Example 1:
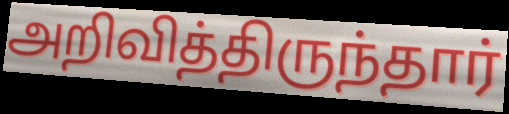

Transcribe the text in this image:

அறிவித்திருந்தார்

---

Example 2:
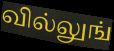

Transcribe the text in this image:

வில்லுங்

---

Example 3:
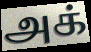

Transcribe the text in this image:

அக்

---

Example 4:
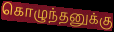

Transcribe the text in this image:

கொழுந்தனுக்கு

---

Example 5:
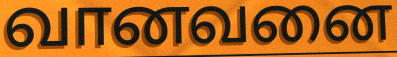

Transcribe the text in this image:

வானவனை